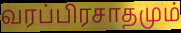
வரப்பிரசாதமும்